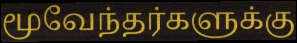
மூவேந்தர்களுக்கு